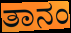
ತಾನಂ